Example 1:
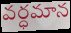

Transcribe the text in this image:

వర్ధమాన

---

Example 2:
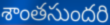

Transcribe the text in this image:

శాంతసుందరి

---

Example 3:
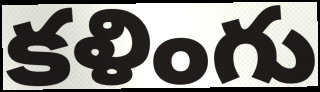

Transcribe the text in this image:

కళింగు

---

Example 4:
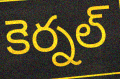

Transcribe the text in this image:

కెర్నల్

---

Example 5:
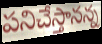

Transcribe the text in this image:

పనిచేస్తానన్న